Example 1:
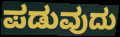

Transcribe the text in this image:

ಪಡುವುದು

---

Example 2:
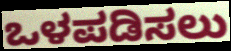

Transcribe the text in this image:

ಒಳಪಡಿಸಲು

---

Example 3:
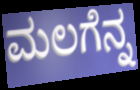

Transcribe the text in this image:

ಮಲಗೆನ್ನ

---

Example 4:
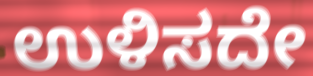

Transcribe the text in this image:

ಉಳಿಸದೇ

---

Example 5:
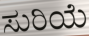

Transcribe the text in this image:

ಸುರಿಯೆ